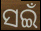
ସଇଁ